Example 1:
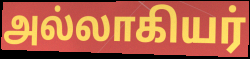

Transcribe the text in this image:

அல்லாகியர்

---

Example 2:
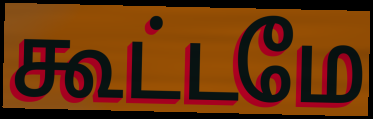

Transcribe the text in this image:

கூட்டமே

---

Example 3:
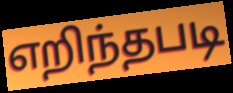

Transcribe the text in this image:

எறிந்தபடி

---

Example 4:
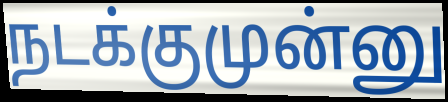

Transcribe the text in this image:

நடக்குமுன்னு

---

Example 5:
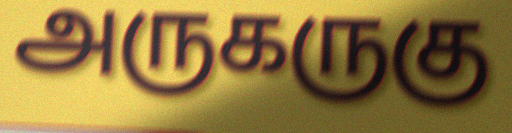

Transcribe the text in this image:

அருகருகு